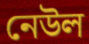
নেউল